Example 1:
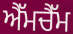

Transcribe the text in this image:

ਐੱਮਚੈੱਮ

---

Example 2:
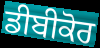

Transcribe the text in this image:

ਡੀਬੀਕੋਰ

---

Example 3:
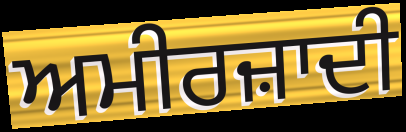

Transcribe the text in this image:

ਅਮੀਰਜ਼ਾਦੀ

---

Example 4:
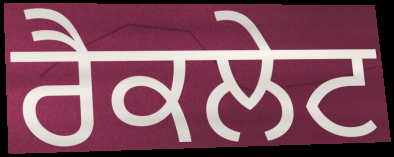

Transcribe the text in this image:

ਰੈਕਲੇਟ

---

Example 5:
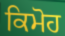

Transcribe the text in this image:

ਕਿਮੋਹ